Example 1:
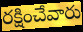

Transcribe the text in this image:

రక్షించేవారు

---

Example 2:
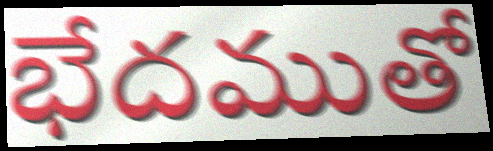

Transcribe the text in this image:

భేదముతో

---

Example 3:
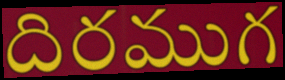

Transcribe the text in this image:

దిరముగ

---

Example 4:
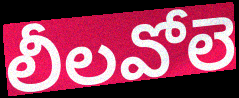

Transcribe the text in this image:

లీలవోలె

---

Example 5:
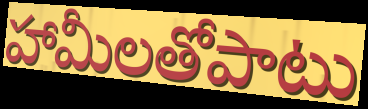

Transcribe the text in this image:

హామీలతోపాటు